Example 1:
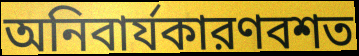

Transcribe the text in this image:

অনিবার্যকারণবশত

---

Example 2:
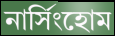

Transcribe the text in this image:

নার্সিংহোম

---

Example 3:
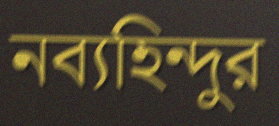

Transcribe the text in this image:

নব্যহিন্দুর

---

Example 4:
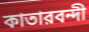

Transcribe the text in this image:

কাতারবন্দী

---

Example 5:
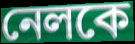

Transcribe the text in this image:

নেলকে